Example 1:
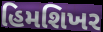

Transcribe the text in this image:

હિમશિખર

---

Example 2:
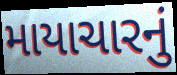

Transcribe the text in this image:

માયાચારનું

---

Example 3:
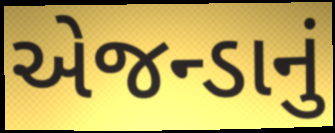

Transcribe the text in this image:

એજન્ડાનું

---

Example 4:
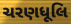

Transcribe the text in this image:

ચરણધૂલિ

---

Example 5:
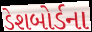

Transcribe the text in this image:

ડેશબોર્ડના